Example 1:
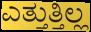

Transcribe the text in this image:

ಎತ್ತುತ್ತಿಲ್ಲ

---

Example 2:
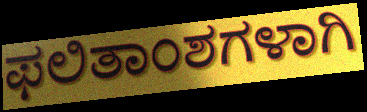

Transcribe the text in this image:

ಫಲಿತಾಂಶಗಳಾಗಿ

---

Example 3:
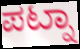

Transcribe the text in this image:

ಪಟ್ನಾ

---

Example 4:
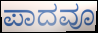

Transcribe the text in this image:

ಪಾದವೂ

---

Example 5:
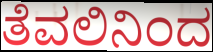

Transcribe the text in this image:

ತೆವಲಿನಿಂದ